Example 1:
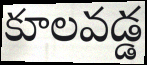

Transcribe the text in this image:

కూలవడ్డ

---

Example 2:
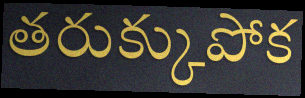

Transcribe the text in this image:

తరుక్కుపోక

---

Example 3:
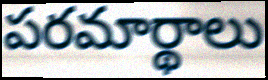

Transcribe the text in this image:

పరమార్థాలు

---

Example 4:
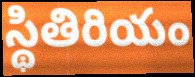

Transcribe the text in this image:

స్థితిరియం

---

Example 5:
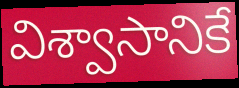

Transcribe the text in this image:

విశ్వాసానికే